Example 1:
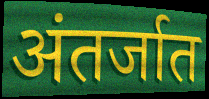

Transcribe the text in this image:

अंतर्जात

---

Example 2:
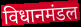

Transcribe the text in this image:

विधानमंडल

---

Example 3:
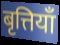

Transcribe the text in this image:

बृत्तियाँ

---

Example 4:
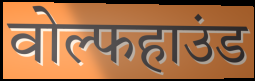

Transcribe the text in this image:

वोल्फहाउंड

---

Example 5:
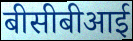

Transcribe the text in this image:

बीसीबीआई